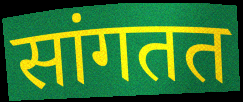
सांगतत